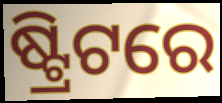
ଷ୍ଟ୍ରିଟରେ